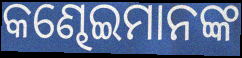
କଣ୍ଢେଇମାନଙ୍କ